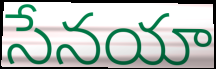
సేనయా